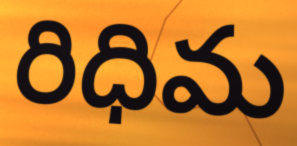
రిధిమ